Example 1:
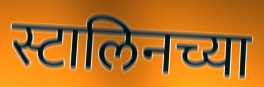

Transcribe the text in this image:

स्टालिनच्या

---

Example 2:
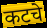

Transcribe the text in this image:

कटचे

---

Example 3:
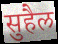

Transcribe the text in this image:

सुहैल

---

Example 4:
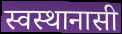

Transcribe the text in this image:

स्वस्थानासी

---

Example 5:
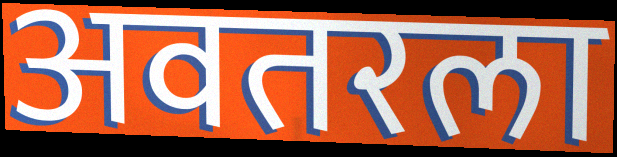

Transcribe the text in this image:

अवतरला